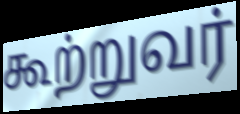
கூற்றுவர்